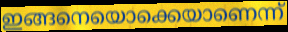
ഇങ്ങനെയൊക്കെയാണെന്ന്